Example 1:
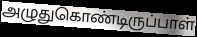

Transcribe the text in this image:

அழுதுகொண்டிருப்பாள்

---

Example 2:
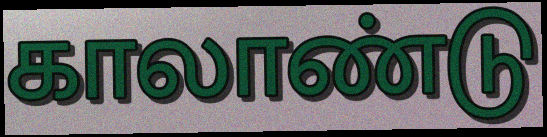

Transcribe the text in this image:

காலாண்டு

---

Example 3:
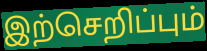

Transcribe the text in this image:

இற்செறிப்பும்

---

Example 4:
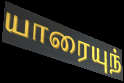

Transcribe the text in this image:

யாரையுந்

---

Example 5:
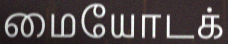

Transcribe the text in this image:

மையோடக்